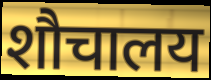
शौचालय